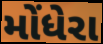
મોંધેરા